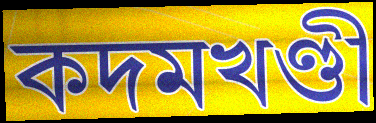
কদমখণ্ডী